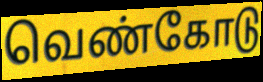
வெண்கோடு